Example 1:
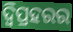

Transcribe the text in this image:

ଦ୍ୱିପ୍ରହରର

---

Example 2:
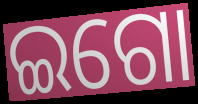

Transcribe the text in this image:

ଇଗୋ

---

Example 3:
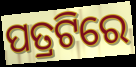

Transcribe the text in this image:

ପତ୍ରଟିରେ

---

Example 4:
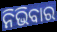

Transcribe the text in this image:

ନିଭିବାର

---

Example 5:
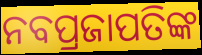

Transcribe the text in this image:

ନବପ୍ରଜାପତିଙ୍କ